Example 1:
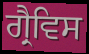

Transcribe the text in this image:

ਗ੍ਰੈਵਿਸ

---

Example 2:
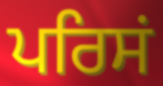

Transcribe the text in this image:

ਪਰਿਸਂ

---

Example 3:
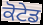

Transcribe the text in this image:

ਕੋਟੇਡ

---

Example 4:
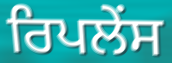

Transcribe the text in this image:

ਰਿਪਲੇਂਸ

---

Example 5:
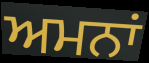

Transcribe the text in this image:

ਅਮਨਾਂ